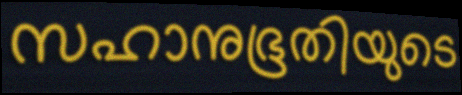
സഹാനുഭൂതിയുടെ